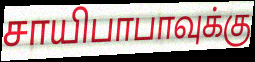
சாயிபாபாவுக்கு